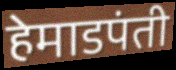
हेमाडपंती